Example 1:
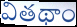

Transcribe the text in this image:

వితథాం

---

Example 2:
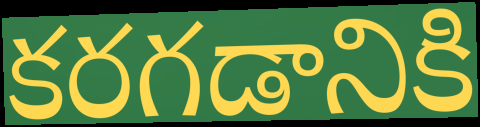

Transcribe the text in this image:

కరగడానికి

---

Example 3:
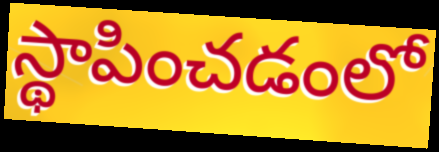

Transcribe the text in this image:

స్థాపించడంలో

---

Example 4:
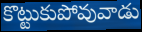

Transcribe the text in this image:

కొట్టుకుపోవువాడు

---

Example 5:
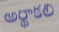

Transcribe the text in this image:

అర్థాకలి